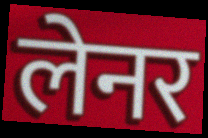
लेनर